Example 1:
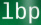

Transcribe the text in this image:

lbp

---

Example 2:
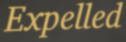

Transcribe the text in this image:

Expelled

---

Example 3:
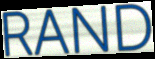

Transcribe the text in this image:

RAND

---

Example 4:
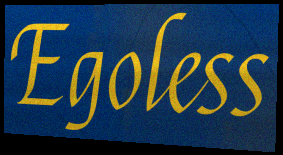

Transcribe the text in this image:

Egoless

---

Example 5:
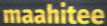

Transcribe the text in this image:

maahitee